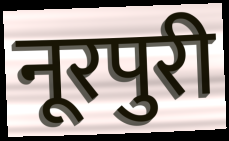
नूरपुरी